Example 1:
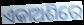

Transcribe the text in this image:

ଏକାଅଶିରେ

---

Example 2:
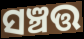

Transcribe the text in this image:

ସଞ୍ଚତ୍ତ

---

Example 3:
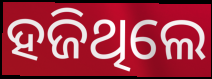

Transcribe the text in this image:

ହଜିଥିଲେ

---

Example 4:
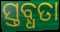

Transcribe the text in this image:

ସ୍ତବ୍ଧତା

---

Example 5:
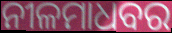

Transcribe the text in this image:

ନୀଳମାଧବର